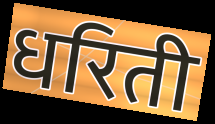
धरिती